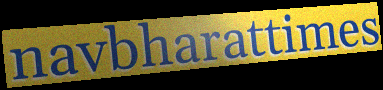
navbharattimes